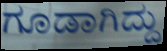
ಗೂಡಾಗಿದ್ದು